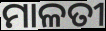
ମାଳତୀ